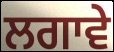
ਲਗਾਵੇ